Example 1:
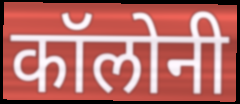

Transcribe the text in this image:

कॉलोनी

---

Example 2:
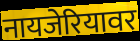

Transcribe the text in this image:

नायजेरियावर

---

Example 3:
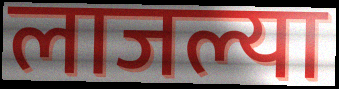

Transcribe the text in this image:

लाजल्या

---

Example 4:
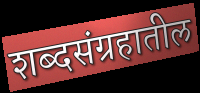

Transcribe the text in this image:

शब्दसंग्रहातील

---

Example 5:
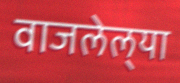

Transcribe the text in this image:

वाजलेल्या